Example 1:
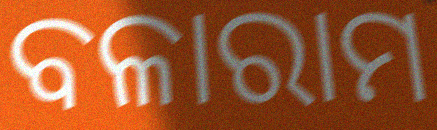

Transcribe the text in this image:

ବଳାରାମ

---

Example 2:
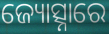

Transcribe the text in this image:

ଜ୍ୟୋତ୍ସ୍ନାରେ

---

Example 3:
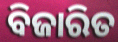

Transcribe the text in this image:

ବିଜାରିତ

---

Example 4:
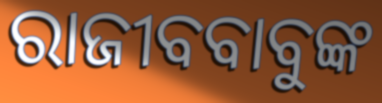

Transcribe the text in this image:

ରାଜୀବବାବୁଙ୍କ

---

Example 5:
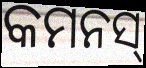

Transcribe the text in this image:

କମନସ୍